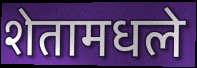
शेतामधले